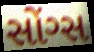
સોંગ્સ